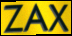
ZAX